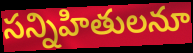
సన్నిహితులనూ